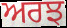
ਅਰਝ